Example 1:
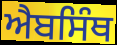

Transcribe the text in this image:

ਐਬਸਿੰਥ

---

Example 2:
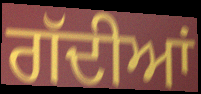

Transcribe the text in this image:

ਗੱਦੀਆਂ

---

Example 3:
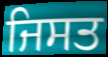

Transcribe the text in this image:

ਜਿਸਤ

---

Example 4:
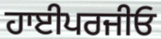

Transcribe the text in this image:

ਹਾਈਪਰਜੀਓ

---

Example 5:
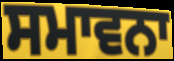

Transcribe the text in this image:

ਸਮਾਵਨਾ